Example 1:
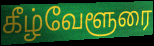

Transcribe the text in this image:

கீழ்வேளூரை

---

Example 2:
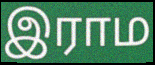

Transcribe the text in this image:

இராம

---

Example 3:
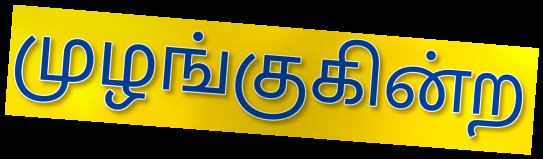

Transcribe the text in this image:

முழங்குகின்ற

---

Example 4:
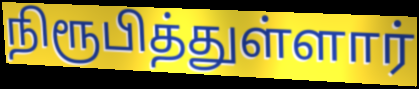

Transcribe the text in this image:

நிரூபித்துள்ளார்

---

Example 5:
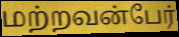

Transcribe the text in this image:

மற்றவன்பேர்